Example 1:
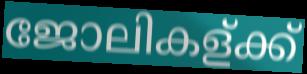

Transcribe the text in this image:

ജോലികള്ക്ക്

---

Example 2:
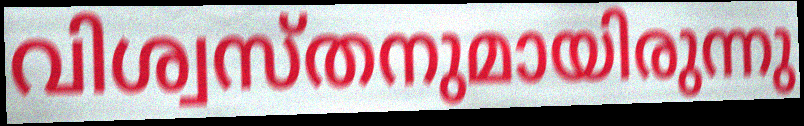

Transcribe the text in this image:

വിശ്വസ്തനുമായിരുന്നു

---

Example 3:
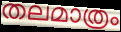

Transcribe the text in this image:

തലമാത്രം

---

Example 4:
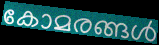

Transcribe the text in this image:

കോമരങ്ങൾ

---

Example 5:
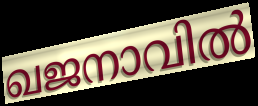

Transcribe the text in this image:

ഖജനാവിൽ